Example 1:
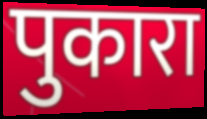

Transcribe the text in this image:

पुकारा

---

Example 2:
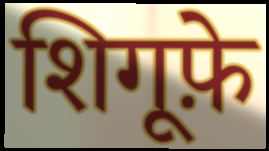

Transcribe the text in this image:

शिगूफ़े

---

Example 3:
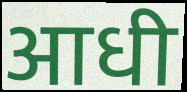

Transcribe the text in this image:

आधी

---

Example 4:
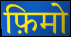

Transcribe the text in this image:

फ़िमो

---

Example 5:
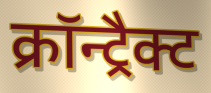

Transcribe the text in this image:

क्रॉन्ट्रैक्ट